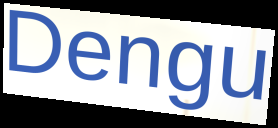
Dengu